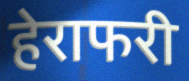
हेराफरी